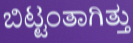
ಬಿಟ್ಟಂತಾಗಿತ್ತು